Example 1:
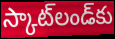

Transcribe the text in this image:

స్కాట్‌లండ్‌కు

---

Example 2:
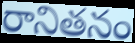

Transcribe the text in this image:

రానితనం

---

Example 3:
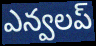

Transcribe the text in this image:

ఎన్వలప్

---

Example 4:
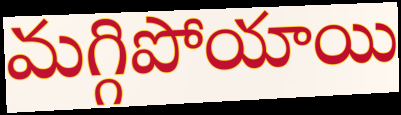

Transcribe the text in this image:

మగ్గిపోయాయి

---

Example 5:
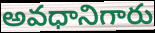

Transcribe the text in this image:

అవధానిగారు